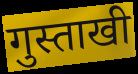
गुस्ताखी